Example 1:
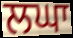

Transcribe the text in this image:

ਲਘਾ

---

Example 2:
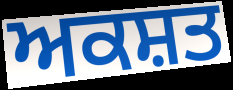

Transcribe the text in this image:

ਅਕਸ਼ਤ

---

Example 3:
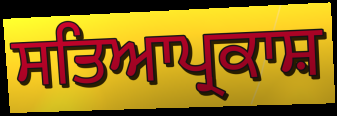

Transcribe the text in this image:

ਸਤਿਆਪ੍ਰਕਾਸ਼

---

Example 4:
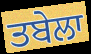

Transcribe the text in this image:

ਤਬੇਲਾ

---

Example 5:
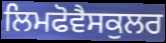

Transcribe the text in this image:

ਲਿਮਫੋਵੈਸਕੁਲਰ